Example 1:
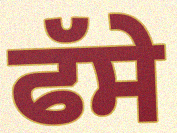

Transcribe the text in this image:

ਫੱਸੇ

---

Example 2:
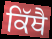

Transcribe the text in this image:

ਕਿੱਥੈ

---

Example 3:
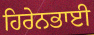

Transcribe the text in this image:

ਹਿਰੇਨਭਾਈ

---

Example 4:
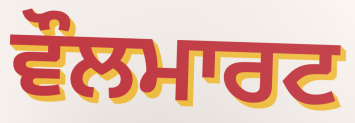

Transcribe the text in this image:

ਵੌਲਮਾਰਟ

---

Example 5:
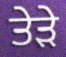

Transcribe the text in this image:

ਤੇੜੇ